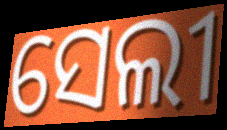
ସେଲୀ